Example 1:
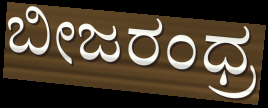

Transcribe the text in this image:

ಬೀಜರಂಧ್ರ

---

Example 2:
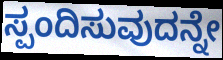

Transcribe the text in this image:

ಸ್ಪಂದಿಸುವುದನ್ನೇ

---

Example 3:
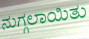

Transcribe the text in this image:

ನುಗ್ಗಲಾಯಿತು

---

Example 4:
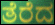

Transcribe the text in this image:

ತೆರೆದ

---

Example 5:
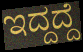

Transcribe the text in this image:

ಇದ್ದದ್ದೆ